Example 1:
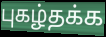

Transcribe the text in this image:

புகழ்தக்க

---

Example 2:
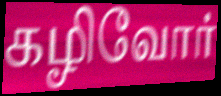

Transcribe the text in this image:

கழிவோர்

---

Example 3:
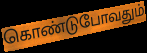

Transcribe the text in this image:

கொண்டுபோவதும்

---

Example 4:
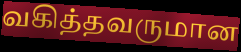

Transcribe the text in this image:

வகித்தவருமான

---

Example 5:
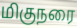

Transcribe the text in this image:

மிகுநரை